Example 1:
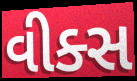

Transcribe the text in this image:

વીક્સ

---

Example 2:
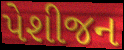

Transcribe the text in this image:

પેશીજન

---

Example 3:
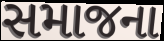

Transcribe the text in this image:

સમાજના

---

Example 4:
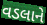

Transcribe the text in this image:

વડલાને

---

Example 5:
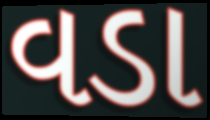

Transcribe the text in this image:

વડા